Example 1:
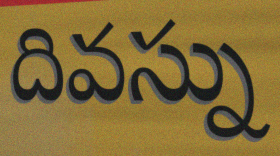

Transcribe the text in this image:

దివస్ను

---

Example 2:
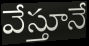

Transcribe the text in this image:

వేస్తూనే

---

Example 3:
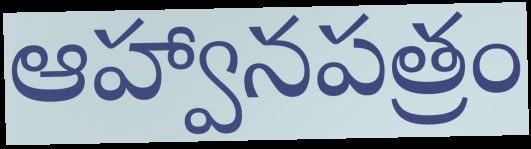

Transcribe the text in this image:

ఆహ్వానపత్రం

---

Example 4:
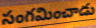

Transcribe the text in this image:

సంగమించాడు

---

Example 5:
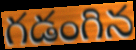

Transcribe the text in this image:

గడంగిన